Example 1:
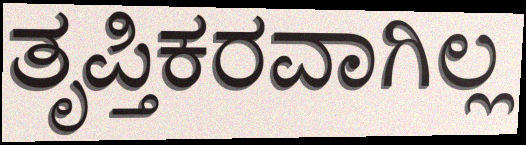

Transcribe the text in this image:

ತೃಪ್ತಿಕರವಾಗಿಲ್ಲ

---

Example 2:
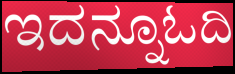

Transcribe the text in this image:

ಇದನ್ನೂಓದಿ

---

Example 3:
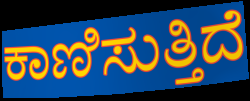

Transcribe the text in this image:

ಕಾಣಿಸುತ್ತಿದೆ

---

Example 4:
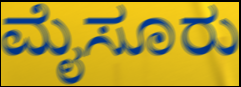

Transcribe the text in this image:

ಮೈಸೂರು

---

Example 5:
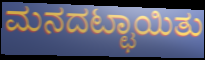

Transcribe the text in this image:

ಮನದಟ್ಟಾಯಿತು